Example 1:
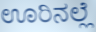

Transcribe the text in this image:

ಊರಿನಲ್ಲೆ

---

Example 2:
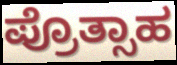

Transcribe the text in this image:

ಪ್ರೊತ್ಸಾಹ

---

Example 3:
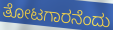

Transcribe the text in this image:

ತೋಟಗಾರನೆಂದು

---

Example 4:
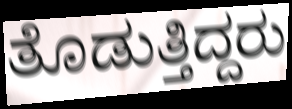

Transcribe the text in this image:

ತೊಡುತ್ತಿದ್ದರು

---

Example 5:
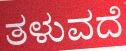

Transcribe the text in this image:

ತಳುವದೆ